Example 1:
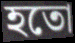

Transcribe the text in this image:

হতো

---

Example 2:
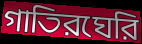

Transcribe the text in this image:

গাতিরঘেরি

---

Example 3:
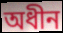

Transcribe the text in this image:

অধীন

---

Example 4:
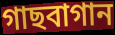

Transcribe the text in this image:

গাছবাগান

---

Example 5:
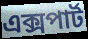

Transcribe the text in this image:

এক্সপার্ট